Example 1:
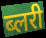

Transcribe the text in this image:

ब्लरी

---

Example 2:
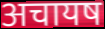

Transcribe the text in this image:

अचायष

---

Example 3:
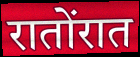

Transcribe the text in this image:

रातोंरात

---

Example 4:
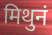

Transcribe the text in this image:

मिथुनं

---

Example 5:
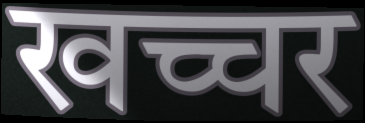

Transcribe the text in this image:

खच्‍चर